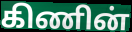
கிணின்